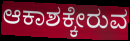
ಆಕಾಶಕ್ಕೇರುವ